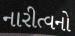
નારીત્વનો